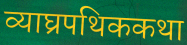
व्याघ्रपथिककथा